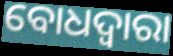
ବୋଧଦ୍ଵାରା